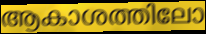
ആകാശത്തിലോ